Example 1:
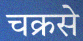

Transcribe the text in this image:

चक्रसे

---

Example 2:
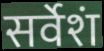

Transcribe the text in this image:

सर्वेशं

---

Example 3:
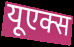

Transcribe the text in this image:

यूएक्स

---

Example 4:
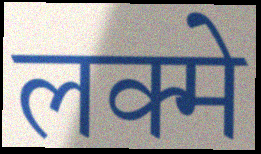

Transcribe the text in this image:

लक्मे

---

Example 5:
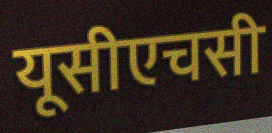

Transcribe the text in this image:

यूसीएचसी